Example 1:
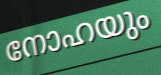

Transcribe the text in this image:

നോഹയും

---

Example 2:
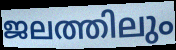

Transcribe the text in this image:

ജലത്തിലും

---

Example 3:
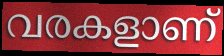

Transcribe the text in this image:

വരകളാണ്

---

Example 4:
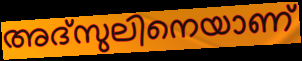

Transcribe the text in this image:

അദ്സുലിനെയാണ്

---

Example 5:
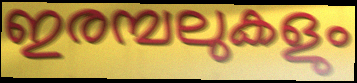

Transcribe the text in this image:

ഇരമ്പലുകളും